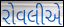
રોવલીએ